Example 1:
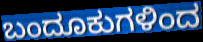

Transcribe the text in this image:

ಬಂದೂಕುಗಳಿಂದ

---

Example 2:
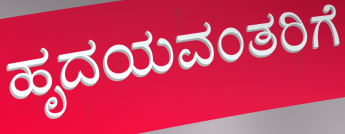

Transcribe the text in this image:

ಹೃದಯವಂತರಿಗೆ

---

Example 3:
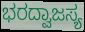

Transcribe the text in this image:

ಭರದ್ವಾಜಸ್ಯ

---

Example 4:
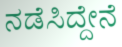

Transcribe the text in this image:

ನಡೆಸಿದ್ದೇನೆ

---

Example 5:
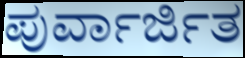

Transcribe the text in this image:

ಪುರ್ವಾರ್ಜಿತ